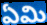
ఏమి